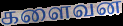
களைவன